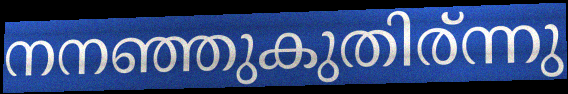
നനഞ്ഞുകുതിര്ന്നു